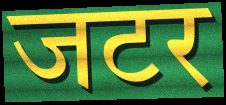
जटर